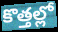
కొత్తల్లో